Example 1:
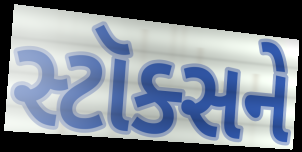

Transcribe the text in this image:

સ્ટૉક્સને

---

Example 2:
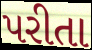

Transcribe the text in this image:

પરીતા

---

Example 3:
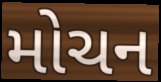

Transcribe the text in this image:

મોચન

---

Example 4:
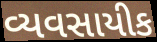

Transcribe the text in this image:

વ્યવસાયીક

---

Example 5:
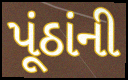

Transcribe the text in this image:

પૂંઠાંની